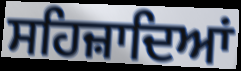
ਸਹਿਜ਼ਾਦਿਆਂ